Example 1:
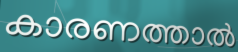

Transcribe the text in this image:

കാരണത്താൽ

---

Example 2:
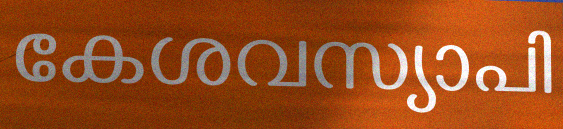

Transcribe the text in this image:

കേശവസ്യാപി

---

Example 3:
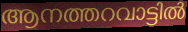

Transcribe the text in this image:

ആനത്തറവാട്ടിൽ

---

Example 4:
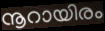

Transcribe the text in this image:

നൂറായിരം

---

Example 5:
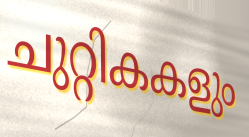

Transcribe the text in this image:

ചുറ്റികകളും